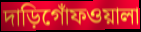
দাড়িগোঁফওয়ালা